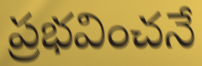
ప్రభవించనే